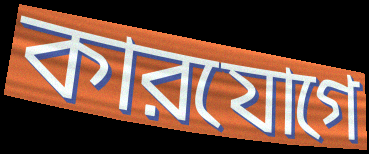
কারযোগে